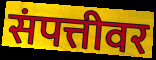
संपत्तीवर